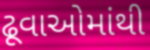
ઢૂવાઓમાંથી